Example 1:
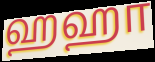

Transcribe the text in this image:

ஹஹா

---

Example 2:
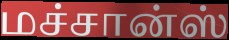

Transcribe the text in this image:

மச்சான்ஸ்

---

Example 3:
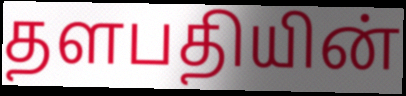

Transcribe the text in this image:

தளபதியின்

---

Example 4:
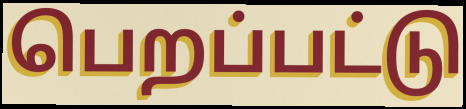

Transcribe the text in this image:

பெறப்பட்டு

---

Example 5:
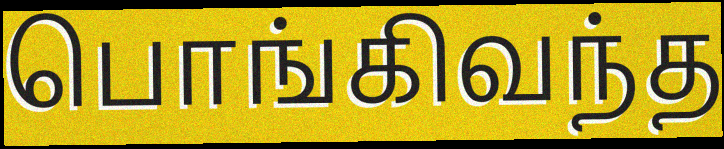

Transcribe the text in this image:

பொங்கிவந்த